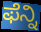
ಫೆನ್ನಿ